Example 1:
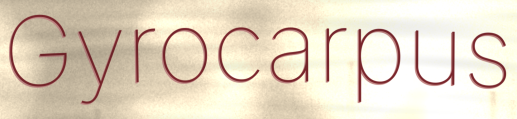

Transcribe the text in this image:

Gyrocarpus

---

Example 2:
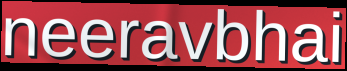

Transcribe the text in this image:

neeravbhai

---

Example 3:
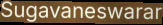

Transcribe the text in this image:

Sugavaneswarar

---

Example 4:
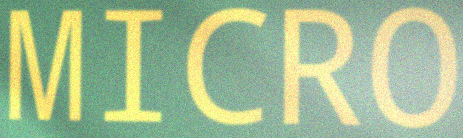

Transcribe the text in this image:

MICRO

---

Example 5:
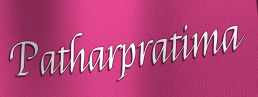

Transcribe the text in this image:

Patharpratima